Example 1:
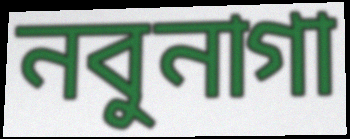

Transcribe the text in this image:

নবুনাগা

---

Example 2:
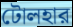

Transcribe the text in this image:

টোলহার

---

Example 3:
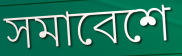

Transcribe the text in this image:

সমাবেশে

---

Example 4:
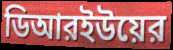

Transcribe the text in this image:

ডিআরইউয়ের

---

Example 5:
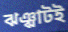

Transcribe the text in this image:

ঝঞ্ঝাটই